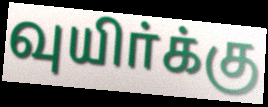
வுயிர்க்கு